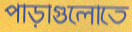
পাড়াগুলোতে